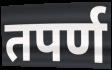
तपर्ण